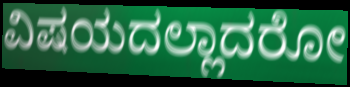
ವಿಷಯದಲ್ಲಾದರೋ